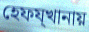
হেফয্খানায়